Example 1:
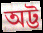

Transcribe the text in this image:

অট্ট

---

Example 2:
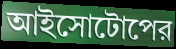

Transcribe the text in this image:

আইসোটোপের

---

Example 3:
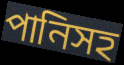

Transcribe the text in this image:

পানিসহ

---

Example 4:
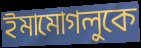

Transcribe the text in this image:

ইমামোগলুকে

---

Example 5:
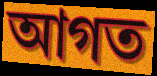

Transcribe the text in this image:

আগত